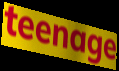
teenage